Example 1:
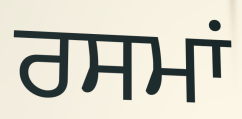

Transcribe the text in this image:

ਰਸਮਾਂ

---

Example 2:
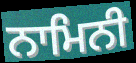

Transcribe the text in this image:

ਨਾਮਿਨੀ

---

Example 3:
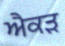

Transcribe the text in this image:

ਐਕੜ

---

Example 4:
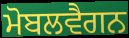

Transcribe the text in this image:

ਮੋਬਲਵੈਗਨ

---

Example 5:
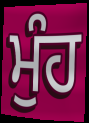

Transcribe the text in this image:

ਮੁੰਹ